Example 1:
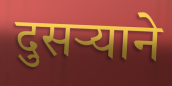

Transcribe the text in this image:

दुसर्‍याने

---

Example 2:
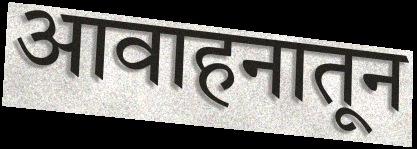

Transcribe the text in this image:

आवाहनातून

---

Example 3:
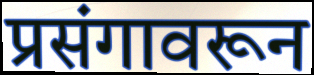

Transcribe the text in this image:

प्रसंगावरून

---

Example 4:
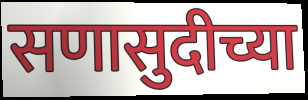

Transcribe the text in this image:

सणासुदीच्या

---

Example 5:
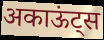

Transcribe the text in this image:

अकाऊंट्स